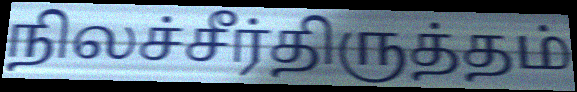
நிலச்சீர்திருத்தம்